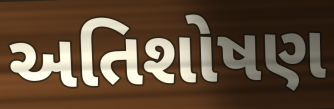
અતિશોષણ